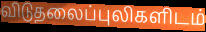
விடுதலைப்புலிகளிடம்